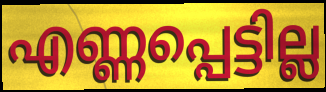
എണ്ണപ്പെട്ടില്ല